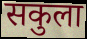
सकुला